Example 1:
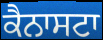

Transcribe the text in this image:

ਕੈਨਾਸਟਾ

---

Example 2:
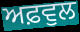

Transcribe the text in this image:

ਅਫ਼ਵੁਲ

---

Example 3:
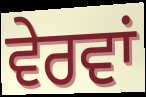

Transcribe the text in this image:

ਵੇਰਵਾਂ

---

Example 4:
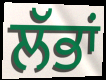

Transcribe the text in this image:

ਲੱਭਾਂ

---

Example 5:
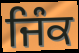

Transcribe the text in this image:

ਜਿੰਕ